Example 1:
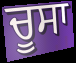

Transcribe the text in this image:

ਚੂਸਾ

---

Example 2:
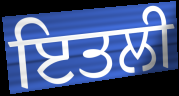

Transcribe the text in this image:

ਇਤਲੀ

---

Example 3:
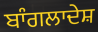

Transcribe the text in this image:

ਬਾੰਗਲਾਦੇਸ਼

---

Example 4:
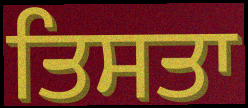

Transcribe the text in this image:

ਤਿਸਤਾ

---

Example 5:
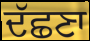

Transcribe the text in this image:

ਦੱਛਣਾ